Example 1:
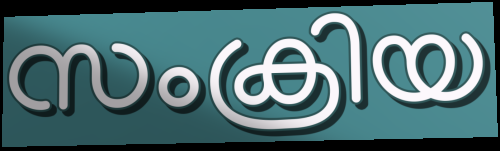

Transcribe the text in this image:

സംക്രിയ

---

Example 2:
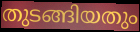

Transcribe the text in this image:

തുടങ്ങിയതും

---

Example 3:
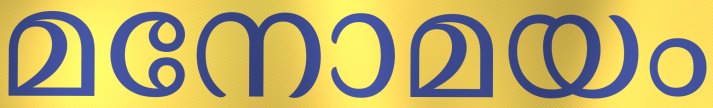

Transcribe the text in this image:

മനോമയം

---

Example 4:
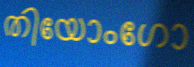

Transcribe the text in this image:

തിയോംഗോ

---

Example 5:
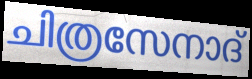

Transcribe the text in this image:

ചിത്രസേനാദ്